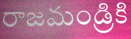
రాజమండ్రికి